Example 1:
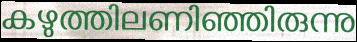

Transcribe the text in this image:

കഴുത്തിലണിഞ്ഞിരുന്നു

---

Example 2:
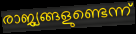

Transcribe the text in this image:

രാജ്യങ്ങളുണ്ടെന്ന്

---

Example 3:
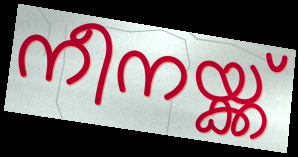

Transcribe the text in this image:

നീനയ്ക്ക്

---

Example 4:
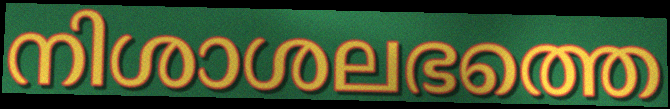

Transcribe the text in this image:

നിശാശലഭത്തെ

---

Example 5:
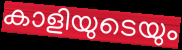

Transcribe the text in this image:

കാളിയുടെയും